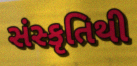
સંસ્કૃતિથી